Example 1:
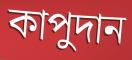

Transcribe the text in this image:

কাপুদান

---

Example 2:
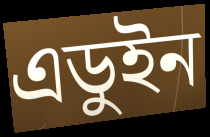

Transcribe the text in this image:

এডুইন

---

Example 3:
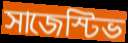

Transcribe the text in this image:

সাজেস্টিভ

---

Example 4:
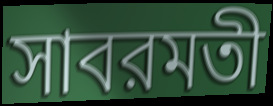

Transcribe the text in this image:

সাবরমতী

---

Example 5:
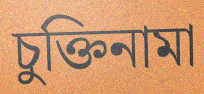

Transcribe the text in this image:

চুক্তিনামা